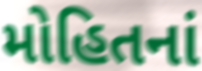
મોહિતનાં